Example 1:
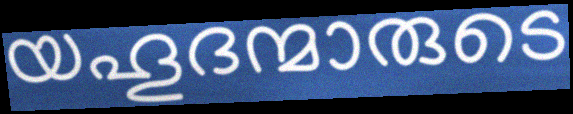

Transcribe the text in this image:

യഹൂദന്മാരുടെ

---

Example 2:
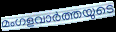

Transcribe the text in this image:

മംഗളവാർത്തയുടെ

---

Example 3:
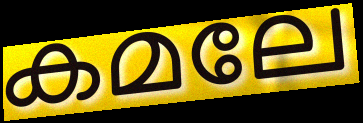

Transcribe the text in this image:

കമലേ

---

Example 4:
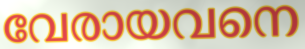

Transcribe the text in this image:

വേരായവനെ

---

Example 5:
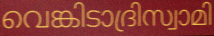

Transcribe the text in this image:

വെങ്കിടാദ്രിസ്വാമി